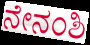
ನೇನಂಶಿ